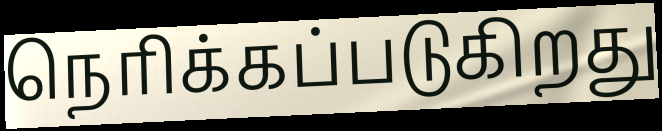
நெரிக்கப்படுகிறது